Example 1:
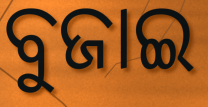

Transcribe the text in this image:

ବୁଜାଇ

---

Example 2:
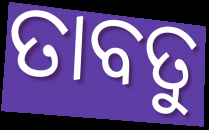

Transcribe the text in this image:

ତାବତୁ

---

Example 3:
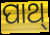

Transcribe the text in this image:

ପାଥ୍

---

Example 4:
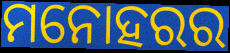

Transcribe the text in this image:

ମନୋହରର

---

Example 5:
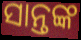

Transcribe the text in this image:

ସାନ୍ତଙ୍କ